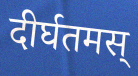
दीर्घतमस्